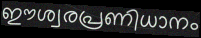
ഈശ്വരപ്രണിധാനം